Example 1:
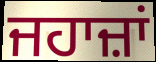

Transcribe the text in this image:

ਜਹਾਜ਼ਾਂ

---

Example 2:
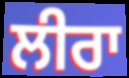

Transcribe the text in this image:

ਲੀਰਾ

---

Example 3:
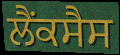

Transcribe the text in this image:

ਲੈਂਕਸੈਸ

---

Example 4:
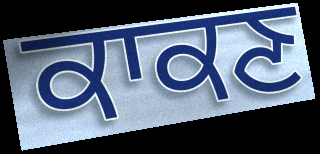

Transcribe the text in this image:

ਕਾਕਣ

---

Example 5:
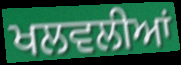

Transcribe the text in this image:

ਖਲਵਲੀਆਂ